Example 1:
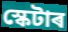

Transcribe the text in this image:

স্কেটাৰ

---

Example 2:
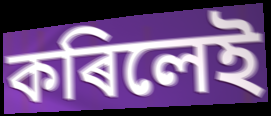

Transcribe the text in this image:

কৰিলেই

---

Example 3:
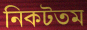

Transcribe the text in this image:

নিকটতম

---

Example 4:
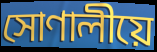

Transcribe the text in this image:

সোণালীয়ে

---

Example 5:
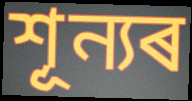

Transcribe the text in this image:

শূন্যৰ